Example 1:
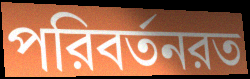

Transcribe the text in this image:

পরিবর্তনরত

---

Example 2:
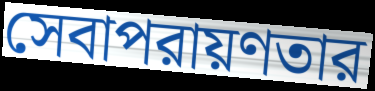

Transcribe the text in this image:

সেবাপরায়ণতার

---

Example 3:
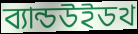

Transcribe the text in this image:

ব্যান্ডউইডথ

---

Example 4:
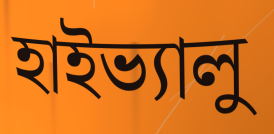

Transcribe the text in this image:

হাইভ্যালু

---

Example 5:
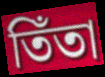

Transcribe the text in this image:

তিঁতা